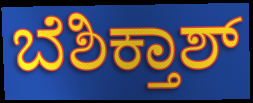
ಬೆಶಿಕ್ತಾಶ್